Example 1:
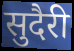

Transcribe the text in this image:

सुदैरी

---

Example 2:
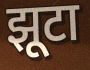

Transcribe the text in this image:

झूटा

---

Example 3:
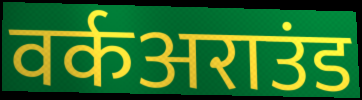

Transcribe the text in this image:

वर्कअराउंड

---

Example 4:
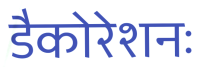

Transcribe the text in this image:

डैकोरेशनः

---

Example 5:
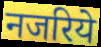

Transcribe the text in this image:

नजरिये